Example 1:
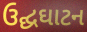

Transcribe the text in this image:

ઉદ્ઘઘાટન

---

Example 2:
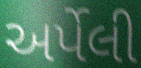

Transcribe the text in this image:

અર્પેલી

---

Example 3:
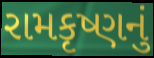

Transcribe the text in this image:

રામકૃષ્ણનું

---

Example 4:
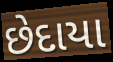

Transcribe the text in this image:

છેદાયા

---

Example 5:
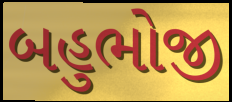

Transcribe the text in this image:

બહુભોજી